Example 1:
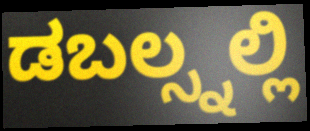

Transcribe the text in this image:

ಡಬಲ್ಸ್ನಲ್ಲಿ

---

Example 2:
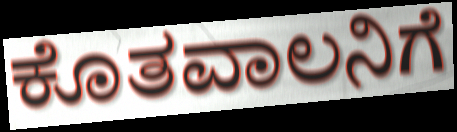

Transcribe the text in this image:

ಕೊತವಾಲನಿಗೆ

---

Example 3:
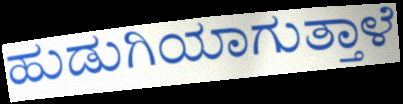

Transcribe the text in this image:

ಹುಡುಗಿಯಾಗುತ್ತಾಳೆ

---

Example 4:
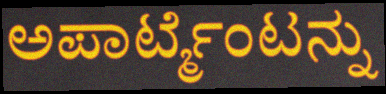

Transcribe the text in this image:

ಅಪಾರ್ಟ್ಮೆಂಟನ್ನು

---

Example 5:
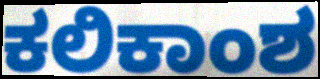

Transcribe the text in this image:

ಕಲಿಕಾಂಶ